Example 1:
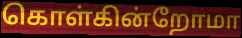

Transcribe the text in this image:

கொள்கின்றோமா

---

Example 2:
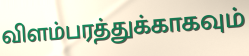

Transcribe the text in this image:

விளம்பரத்துக்காகவும்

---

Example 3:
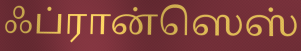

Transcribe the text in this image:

ஃப்ரான்ஸெஸ்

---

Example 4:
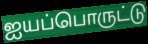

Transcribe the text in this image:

ஐயப்பொருட்டு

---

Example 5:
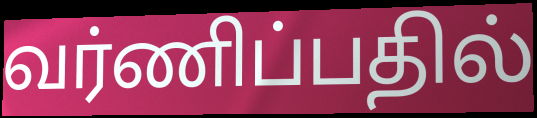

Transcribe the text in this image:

வர்ணிப்பதில்